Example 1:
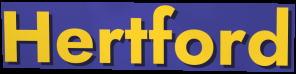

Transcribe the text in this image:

Hertford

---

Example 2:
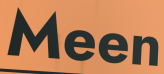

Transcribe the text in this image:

Meen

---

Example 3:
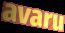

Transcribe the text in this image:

avaru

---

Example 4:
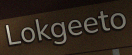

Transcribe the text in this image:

Lokgeeto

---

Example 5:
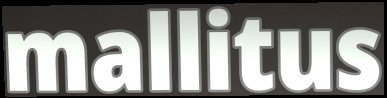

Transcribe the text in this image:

mallitus